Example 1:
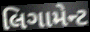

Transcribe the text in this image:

લિગામેન્ટ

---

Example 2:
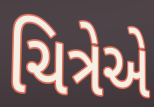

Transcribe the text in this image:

ચિત્રેએ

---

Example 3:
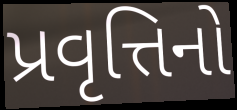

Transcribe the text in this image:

પ્રવૃત્તિનો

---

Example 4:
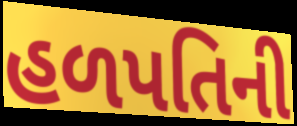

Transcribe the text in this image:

હળપતિની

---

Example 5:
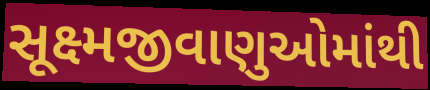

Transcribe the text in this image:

સૂક્ષ્મજીવાણુઓમાંથી